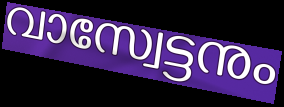
വാസ്വേട്ടനും